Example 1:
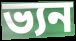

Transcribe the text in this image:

ভ্যন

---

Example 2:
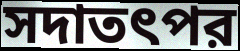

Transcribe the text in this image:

সদাতৎপর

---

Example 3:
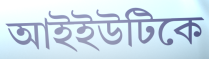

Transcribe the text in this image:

আইইউটিকে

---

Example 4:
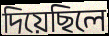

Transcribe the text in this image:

দিয়েছিলে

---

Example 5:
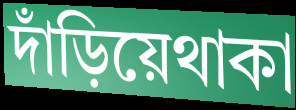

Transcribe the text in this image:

দাঁড়িয়েথাকা